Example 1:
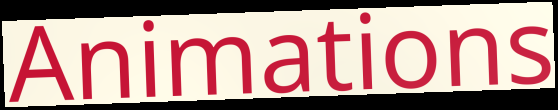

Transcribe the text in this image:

Animations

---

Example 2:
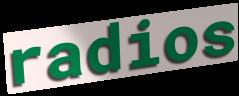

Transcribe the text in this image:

radios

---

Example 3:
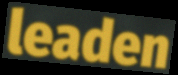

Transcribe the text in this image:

leaden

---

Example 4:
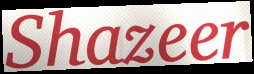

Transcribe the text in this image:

Shazeer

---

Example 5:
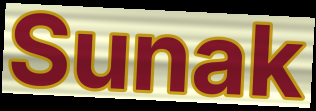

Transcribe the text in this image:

Sunak